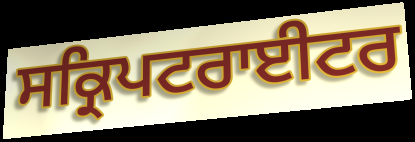
ਸਕ੍ਰਿਪਟਰਾਈਟਰ